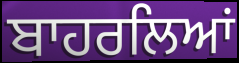
ਬਾਹਰਲਿਆਂ